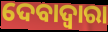
ଦେବାଦ୍ବାରା